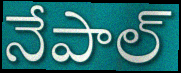
నేపాల్